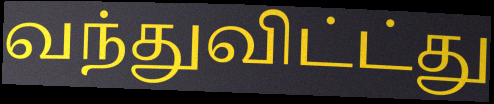
வந்துவிட்ட்து